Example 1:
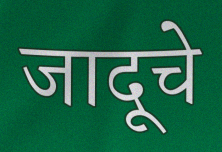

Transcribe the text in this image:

जादूचे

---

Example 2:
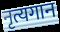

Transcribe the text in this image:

नृत्यगान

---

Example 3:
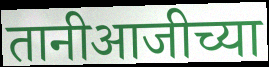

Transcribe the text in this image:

तानीआजीच्या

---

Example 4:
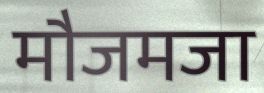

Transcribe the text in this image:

मौजमजा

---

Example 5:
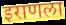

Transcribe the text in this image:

इराणला